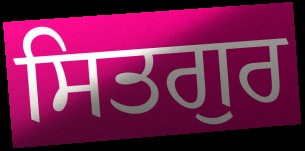
ਸਿਤਗੁਰ